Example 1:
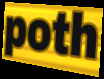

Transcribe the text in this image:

poth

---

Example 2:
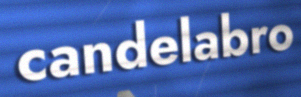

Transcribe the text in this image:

candelabro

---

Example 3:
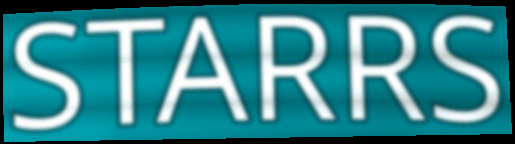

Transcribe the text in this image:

STARRS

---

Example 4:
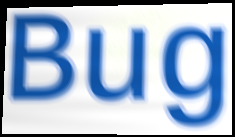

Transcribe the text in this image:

Bug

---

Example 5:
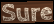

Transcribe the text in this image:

Sure